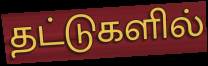
தட்டுகளில்